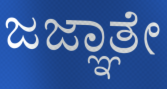
ಜಜ್ಞಾತೇ